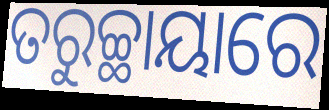
ତରୁଚ୍ଛାୟାରେ